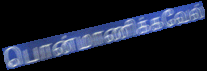
பொன்மாணிக்கவேல்